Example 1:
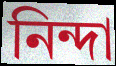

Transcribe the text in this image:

নিন্দা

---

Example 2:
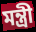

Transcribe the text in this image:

মন্ত্ৰী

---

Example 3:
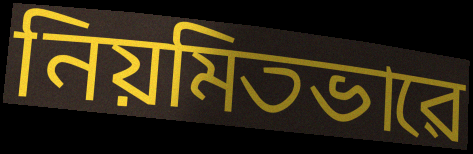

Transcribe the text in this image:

নিয়মিতভাৱে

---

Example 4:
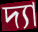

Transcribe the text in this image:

দ্যা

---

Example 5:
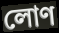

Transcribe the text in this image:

লোণ